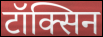
टॉक्सिन